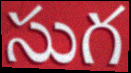
సుగ